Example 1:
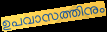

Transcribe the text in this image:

ഉപവാസത്തിനും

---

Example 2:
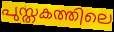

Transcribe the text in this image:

പുസ്തകത്തിലെ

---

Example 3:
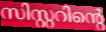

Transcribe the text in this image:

സിസ്റ്ററിന്റെ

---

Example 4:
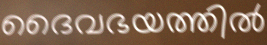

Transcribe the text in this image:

ദൈവഭയത്തിൽ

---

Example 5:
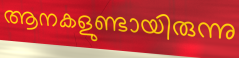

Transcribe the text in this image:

ആനകളുണ്ടായിരുന്നു